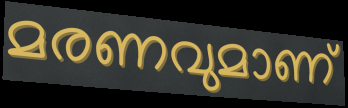
മരണവുമാണ്